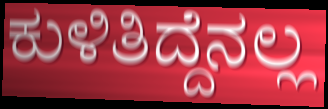
ಕುಳಿತಿದ್ದೆನಲ್ಲ